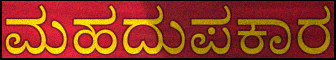
ಮಹದುಪಕಾರ